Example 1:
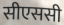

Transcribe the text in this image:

सीएससी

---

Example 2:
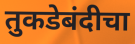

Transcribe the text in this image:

तुकडेबंदीचा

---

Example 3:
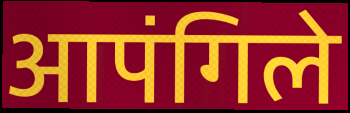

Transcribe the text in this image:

आपंगिले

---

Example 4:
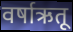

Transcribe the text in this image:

वर्षाऋतू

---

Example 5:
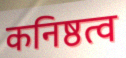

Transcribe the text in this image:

कनिष्ठत्व